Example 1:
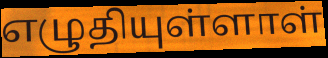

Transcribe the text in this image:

எழுதியுள்ளாள்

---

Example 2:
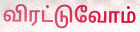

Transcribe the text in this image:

விரட்டுவோம்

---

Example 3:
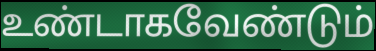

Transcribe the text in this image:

உண்டாகவேண்டும்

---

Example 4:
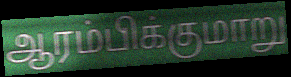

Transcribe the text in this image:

ஆரம்பிக்குமாறு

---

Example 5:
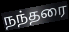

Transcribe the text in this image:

நந்தரை